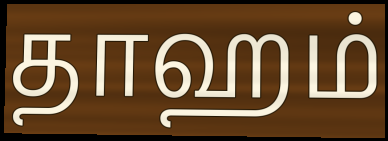
தாஹம்